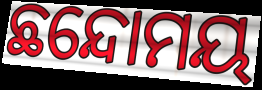
ଛନ୍ଦୋମୟ